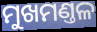
ମୁଖମଣ୍ତଳ